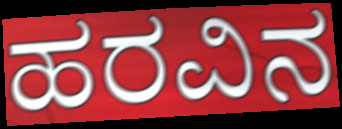
ಹರವಿನ